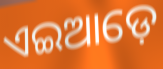
ଏଇଆଡ଼େ